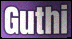
Guthi